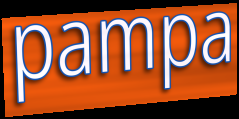
pampa